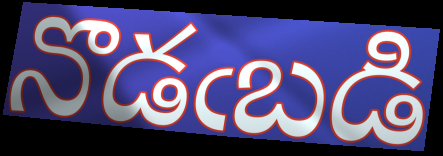
నొడఁబడి